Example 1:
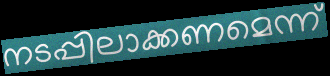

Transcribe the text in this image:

നടപ്പിലാക്കണമെന്ന്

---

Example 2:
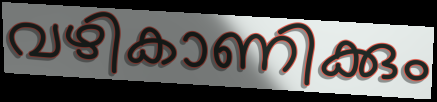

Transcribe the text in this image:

വഴികാണിക്കും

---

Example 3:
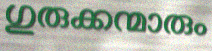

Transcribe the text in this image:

ഗുരുക്കന്മാരും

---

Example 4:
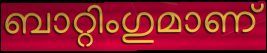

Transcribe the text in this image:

ബാറ്റിംഗുമാണ്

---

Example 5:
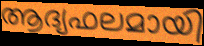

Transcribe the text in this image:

ആദ്യഫലമായി